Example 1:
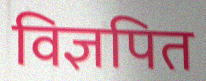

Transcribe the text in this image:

विज्ञपित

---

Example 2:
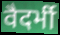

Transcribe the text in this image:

वैदर्भी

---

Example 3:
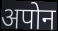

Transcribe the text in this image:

अपोन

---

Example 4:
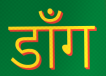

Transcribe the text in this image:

डाँग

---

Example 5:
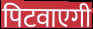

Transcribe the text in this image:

पिटवाएगी